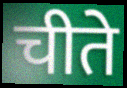
चीते